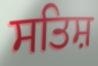
ਸਤਿਸ਼